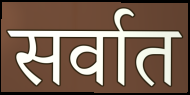
सर्वात